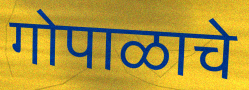
गोपाळाचे